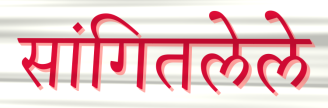
सांगितलेले